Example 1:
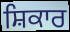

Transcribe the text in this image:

ਸ਼ਿਕਾਰ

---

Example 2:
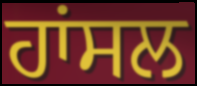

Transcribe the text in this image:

ਹਾਂਸਲ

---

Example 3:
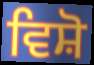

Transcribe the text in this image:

ਵਿਸ਼ੋ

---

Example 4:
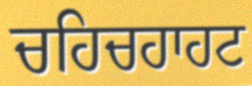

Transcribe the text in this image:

ਚਹਿਚਹਾਹਟ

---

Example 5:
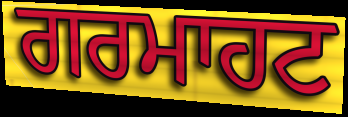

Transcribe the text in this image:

ਗਰਮਾਹਟ